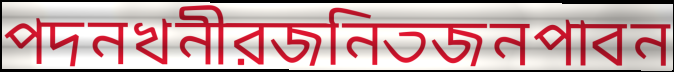
পদনখনীরজনিতজনপাবন